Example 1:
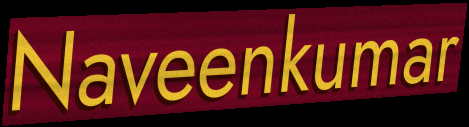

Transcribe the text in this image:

Naveenkumar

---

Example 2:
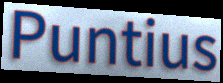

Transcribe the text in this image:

Puntius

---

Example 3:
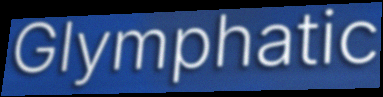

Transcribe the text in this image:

Glymphatic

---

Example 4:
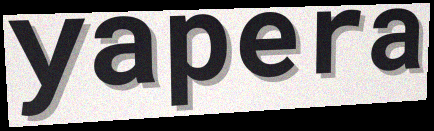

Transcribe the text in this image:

yapera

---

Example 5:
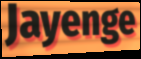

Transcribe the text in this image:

Jayenge